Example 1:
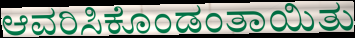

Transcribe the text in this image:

ಆವರಿಸಿಕೊಂಡಂತಾಯಿತು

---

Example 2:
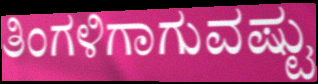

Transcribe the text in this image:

ತಿಂಗಳಿಗಾಗುವಷ್ಟು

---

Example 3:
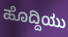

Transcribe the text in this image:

ಹೊದ್ದಿಯು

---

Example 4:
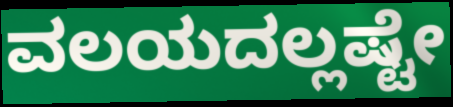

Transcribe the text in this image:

ವಲಯದಲ್ಲಷ್ಟೇ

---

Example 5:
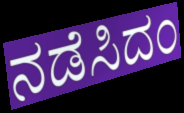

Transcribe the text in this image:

ನಡೆಸಿದಂ